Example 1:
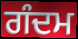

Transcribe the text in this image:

ਗੰਦਮ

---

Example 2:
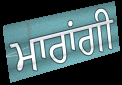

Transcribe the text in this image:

ਮਾਰਾਂਗੀ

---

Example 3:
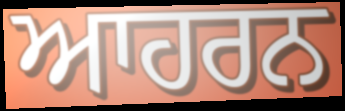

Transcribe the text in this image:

ਆਹਰਨ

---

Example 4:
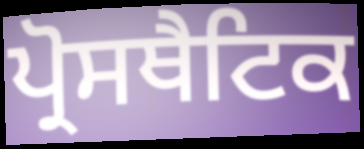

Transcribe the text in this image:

ਪ੍ਰੋਸਥੈਟਿਕ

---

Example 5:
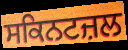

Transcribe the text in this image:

ਸਕਿਨਟਜ਼ਲ